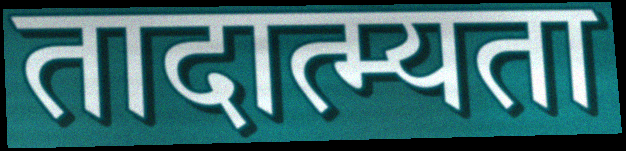
तादात्म्यता